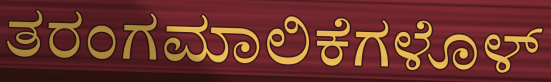
ತರಂಗಮಾಲಿಕೆಗಳೊಳ್